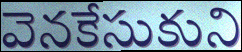
వెనకేసుకుని